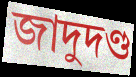
জাদুদণ্ড